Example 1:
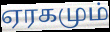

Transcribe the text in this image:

ஏரகமும்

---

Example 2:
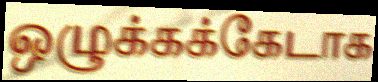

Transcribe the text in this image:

ஒழுக்கக்கேடாக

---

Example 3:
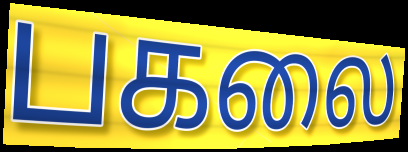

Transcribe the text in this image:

பகலை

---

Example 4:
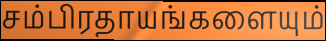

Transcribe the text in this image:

சம்பிரதாயங்களையும்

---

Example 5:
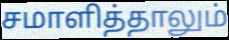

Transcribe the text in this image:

சமாளித்தாலும்